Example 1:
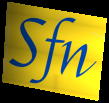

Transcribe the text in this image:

Sfn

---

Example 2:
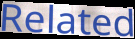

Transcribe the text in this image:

Related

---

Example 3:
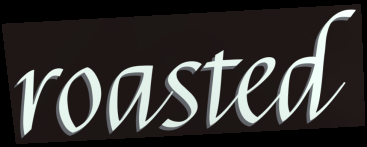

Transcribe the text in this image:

roasted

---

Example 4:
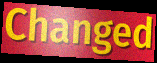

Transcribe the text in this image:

Changed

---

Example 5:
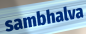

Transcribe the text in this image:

sambhalva